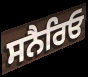
ਸਨੈਰਿਓ